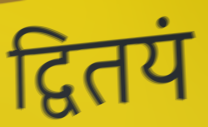
द्वितयं